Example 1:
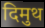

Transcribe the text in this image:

दिमुथ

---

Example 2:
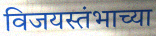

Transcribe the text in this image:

विजयस्तंभाच्या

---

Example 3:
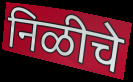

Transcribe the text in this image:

निळीचे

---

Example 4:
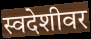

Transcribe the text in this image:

स्वदेशीवर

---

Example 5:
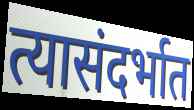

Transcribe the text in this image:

त्यासंदर्भात